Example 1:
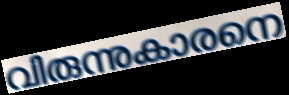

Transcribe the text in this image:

വിരുന്നുകാരനെ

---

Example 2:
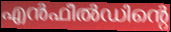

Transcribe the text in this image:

എൻഫീൽഡിന്റെ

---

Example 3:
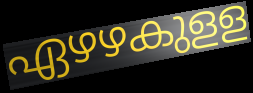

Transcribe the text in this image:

ഏഴഴകുളള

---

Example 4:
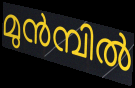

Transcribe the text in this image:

മുൻമ്പിൽ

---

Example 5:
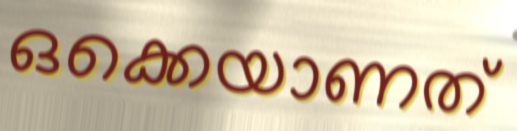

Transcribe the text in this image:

ഒക്കെയാണത്